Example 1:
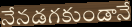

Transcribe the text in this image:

నేనడగకుండానే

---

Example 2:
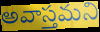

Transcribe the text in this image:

అవాస్తమని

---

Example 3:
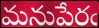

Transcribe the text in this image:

మనుపేరఁ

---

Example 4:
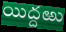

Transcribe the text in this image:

యిద్దఱు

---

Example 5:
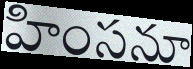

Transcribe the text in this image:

హింసనూ